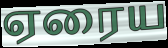
ஏரைய